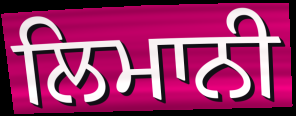
ਲਿਮਾਨੀ